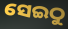
ସେଇଠୁ